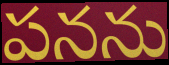
పనను